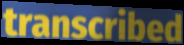
transcribed